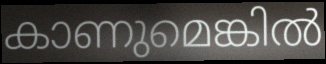
കാണുമെങ്കിൽ